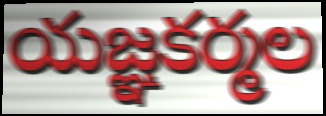
యజ్ఞకర్మల